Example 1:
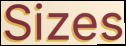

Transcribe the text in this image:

Sizes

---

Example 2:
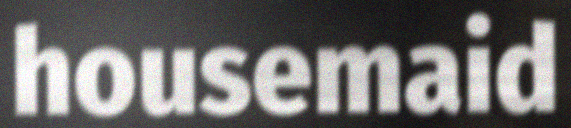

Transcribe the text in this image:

housemaid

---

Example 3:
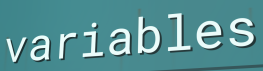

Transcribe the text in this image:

variables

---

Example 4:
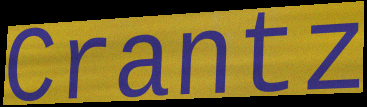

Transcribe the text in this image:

Crantz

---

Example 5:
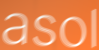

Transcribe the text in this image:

asol